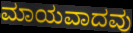
ಮಾಯವಾದವು